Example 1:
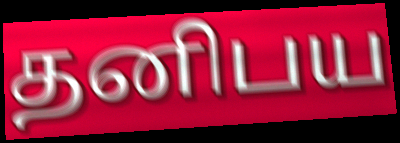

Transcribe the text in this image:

தனிபய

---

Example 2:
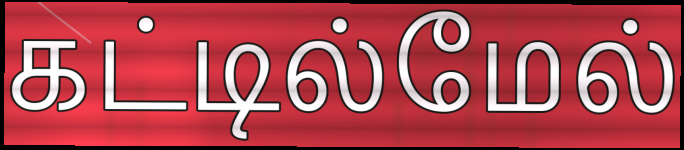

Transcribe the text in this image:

கட்டில்மேல்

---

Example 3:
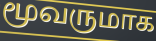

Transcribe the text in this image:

மூவருமாக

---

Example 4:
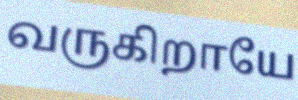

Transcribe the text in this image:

வருகிறாயே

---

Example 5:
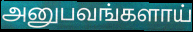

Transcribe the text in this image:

அனுபவங்களாய்